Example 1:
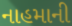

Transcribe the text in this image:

નાહમાની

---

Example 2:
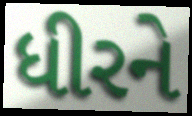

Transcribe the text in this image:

ધીરને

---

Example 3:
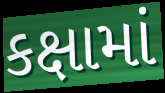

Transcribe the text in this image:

કક્ષામાં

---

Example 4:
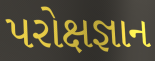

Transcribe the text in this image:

પરોક્ષજ્ઞાન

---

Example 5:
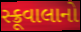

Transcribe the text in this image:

સ્ક્રૂવાલાનો